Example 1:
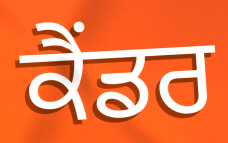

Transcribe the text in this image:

ਕੈਂਡਰ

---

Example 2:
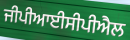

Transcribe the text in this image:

ਜੀਪੀਆਈਸੀਪੀਐਲ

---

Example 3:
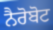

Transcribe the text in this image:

ਨੈਰੋਬੋਟ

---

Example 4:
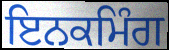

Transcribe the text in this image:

ਇਨਕਮਿੰਗ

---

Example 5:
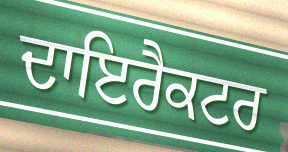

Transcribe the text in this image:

ਦਾਇਰੈਕਟਰ